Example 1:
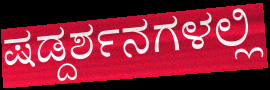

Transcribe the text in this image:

ಷಡ್ದರ್ಶನಗಳಲ್ಲಿ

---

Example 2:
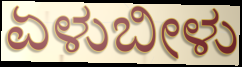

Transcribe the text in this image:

ಏಳುಬೀಳು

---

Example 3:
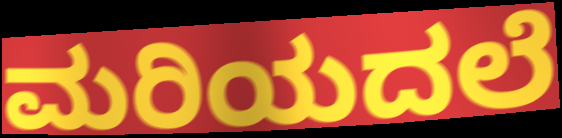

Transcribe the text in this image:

ಮರಿಯದಲೆ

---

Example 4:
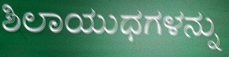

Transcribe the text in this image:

ಶಿಲಾಯುಧಗಳನ್ನು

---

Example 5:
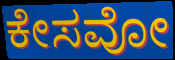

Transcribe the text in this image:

ಕೇಸವೋ